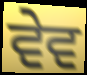
ਵੇਵ